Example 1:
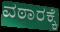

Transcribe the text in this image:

ವಠಾರಕ್ಕೆ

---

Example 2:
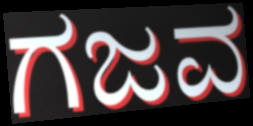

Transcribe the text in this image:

ಗಜವ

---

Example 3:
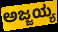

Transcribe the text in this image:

ಅಜ್ಜಯ್ಯ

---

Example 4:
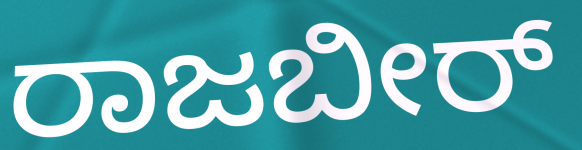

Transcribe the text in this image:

ರಾಜಬೀರ್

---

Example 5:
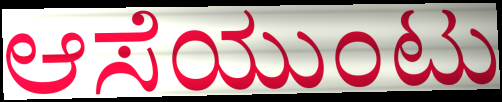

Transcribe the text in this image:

ಆಸೆಯುಂಟು